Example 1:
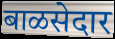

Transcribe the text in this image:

बाळसेदार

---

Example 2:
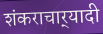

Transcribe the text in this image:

शंकराचार्यादी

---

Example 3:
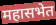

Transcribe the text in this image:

महासभेत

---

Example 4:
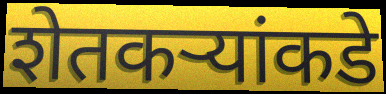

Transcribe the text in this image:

शेतकर्‍यांकडे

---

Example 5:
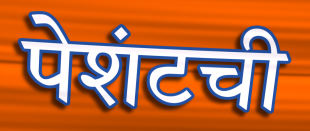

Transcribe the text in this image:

पेशंटची